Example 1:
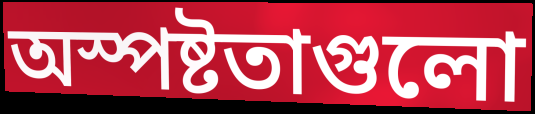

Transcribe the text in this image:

অস্পষ্টতাগুলো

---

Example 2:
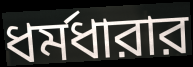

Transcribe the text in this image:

ধর্মধারার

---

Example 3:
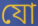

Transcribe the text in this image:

যো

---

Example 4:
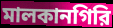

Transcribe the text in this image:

মালকানগিরি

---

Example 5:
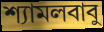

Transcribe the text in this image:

শ্যামলবাবু